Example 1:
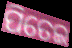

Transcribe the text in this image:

ପିତେଇ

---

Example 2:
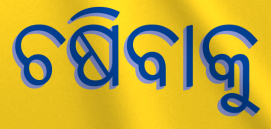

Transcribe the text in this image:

ଚଷିବାକୁ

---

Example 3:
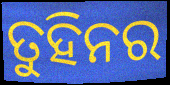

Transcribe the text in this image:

ତୁହିନର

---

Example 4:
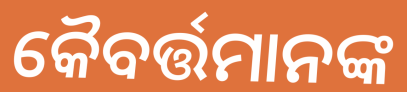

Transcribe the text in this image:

କୈବର୍ତ୍ତମାନଙ୍କ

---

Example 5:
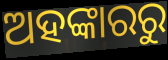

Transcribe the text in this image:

ଅହଙ୍କାରରୁ